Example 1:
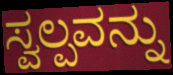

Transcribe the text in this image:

ಸ್ವಲ್ಪವನ್ನು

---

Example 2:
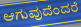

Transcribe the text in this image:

ಆಗುವುದೆಂದರೆ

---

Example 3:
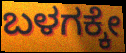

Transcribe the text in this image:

ಬಳಗಕ್ಕೇ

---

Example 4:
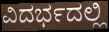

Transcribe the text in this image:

ವಿದರ್ಭದಲ್ಲಿ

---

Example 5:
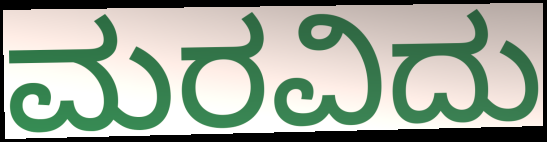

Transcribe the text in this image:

ಮರವಿದು